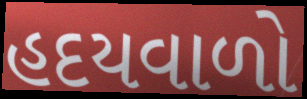
હદયવાળો